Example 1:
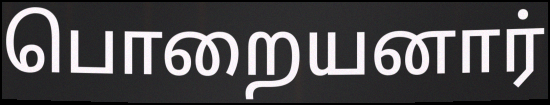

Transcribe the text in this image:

பொறையனார்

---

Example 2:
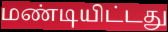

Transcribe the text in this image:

மண்டியிட்டது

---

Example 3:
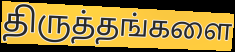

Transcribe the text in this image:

திருத்தங்களை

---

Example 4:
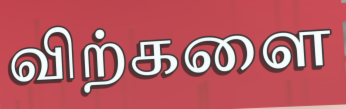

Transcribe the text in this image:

விற்களை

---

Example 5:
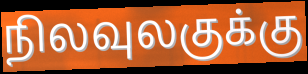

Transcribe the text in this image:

நிலவுலகுக்கு